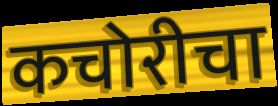
कचोरीचा